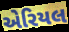
એરિયલ